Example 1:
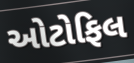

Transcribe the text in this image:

ઓટોફિલ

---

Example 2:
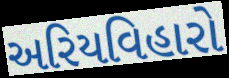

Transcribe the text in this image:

અરિયવિહારો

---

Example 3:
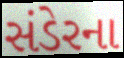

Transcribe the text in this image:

સંડેરના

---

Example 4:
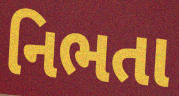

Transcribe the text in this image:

નિભતા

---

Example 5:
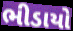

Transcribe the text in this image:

ભીડાયો